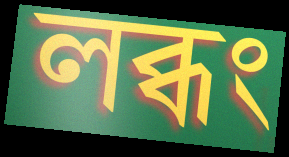
লব্ধং